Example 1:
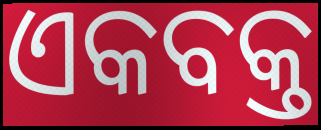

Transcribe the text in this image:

ଏକବକ୍ତ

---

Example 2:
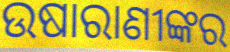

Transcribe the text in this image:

ଉଷାରାଣୀଙ୍କର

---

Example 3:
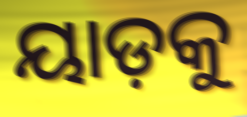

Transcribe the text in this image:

ୟାଡ଼କୁ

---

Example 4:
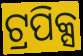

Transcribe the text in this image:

ଟ୍ରପିକ୍ସ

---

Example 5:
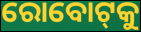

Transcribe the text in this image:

ରୋବୋଟ୍‌କୁ